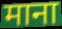
माना